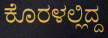
ಕೊರಳಲ್ಲಿದ್ದ